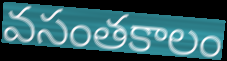
వసంతకాలం